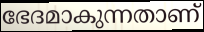
ഭേദമാകുന്നതാണ്